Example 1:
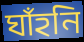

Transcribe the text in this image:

ঘাঁহনি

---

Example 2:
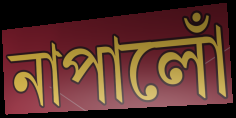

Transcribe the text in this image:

নাপালোঁ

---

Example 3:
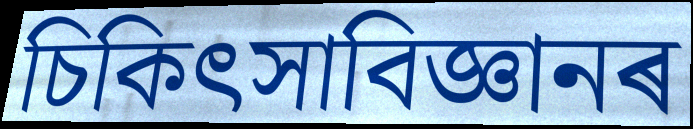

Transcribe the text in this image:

চিকিৎসাবিজ্ঞানৰ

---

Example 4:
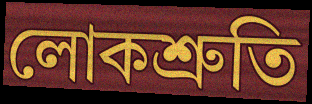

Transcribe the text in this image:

লোকশ্ৰুতি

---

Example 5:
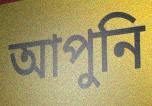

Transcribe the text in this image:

আপুনি